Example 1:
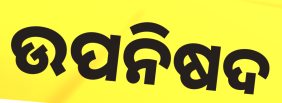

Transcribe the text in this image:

ଉପନିଷଦ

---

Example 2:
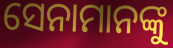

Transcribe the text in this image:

ସେନାମାନଙ୍କୁ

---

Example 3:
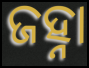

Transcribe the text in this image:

ଜହ୍ନା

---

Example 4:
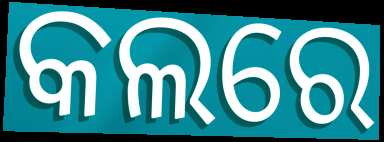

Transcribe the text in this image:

କଲରେ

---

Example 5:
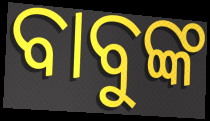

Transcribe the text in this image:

ବାବୁଙ୍କ